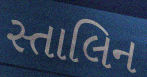
સ્તાલિન